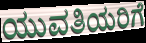
ಯುವತಿಯರಿಗೆ